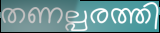
തണല്പരത്തി